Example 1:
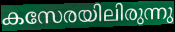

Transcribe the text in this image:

കസേരയിലിരുന്നു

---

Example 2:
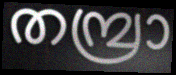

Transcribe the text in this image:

തമ്പ്രാ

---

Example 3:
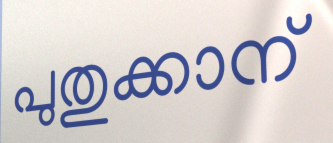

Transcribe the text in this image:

പുതുക്കാന്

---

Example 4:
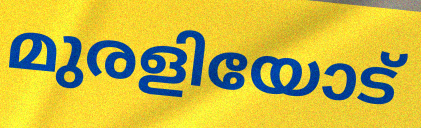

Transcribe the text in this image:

മുരളിയോട്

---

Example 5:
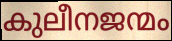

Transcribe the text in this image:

കുലീനജന്മം